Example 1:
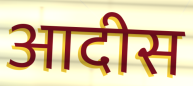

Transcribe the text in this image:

आदीस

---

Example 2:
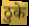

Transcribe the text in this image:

ठुके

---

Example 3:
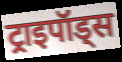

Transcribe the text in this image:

ट्राइपॉड्स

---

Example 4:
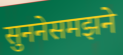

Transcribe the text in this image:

सुननेसमझने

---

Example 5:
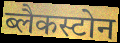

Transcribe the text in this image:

ब्लैकस्टोन